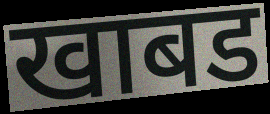
खाबड